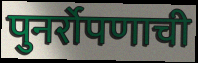
पुनर्रोपणाची